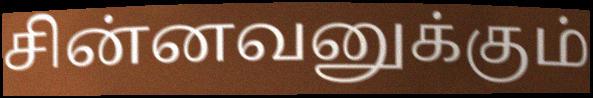
சின்னவனுக்கும்